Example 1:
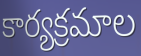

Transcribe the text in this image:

కార్యక్రమాల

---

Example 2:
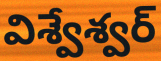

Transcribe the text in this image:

విశ్వేశ్వర్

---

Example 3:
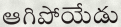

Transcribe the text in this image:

ఆగిపోయేడు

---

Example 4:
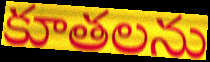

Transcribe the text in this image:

కూతలను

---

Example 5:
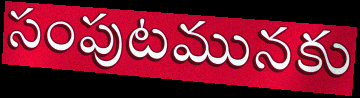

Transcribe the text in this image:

సంపుటమునకు